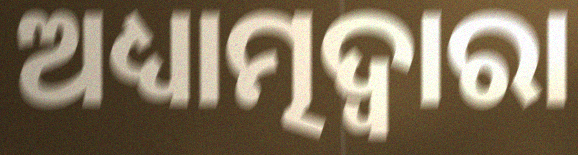
ଅଧ୍ୟାତ୍ମଦ୍ୱାରା